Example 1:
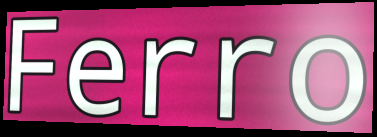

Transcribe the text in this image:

Ferro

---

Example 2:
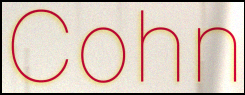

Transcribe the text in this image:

Cohn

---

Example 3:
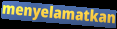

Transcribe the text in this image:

menyelamatkan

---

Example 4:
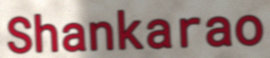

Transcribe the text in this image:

Shankarao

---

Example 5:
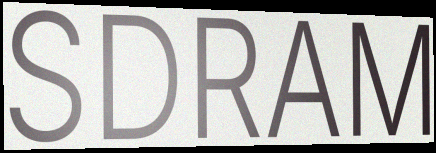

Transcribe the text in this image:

SDRAM